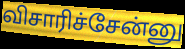
விசாரிச்சேன்னு